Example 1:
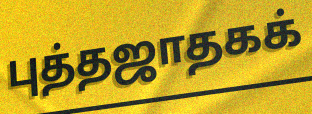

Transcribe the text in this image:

புத்தஜாதகக்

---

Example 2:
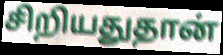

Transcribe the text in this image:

சிறியதுதான்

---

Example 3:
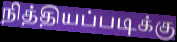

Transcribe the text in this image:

நித்தியப்படிக்கு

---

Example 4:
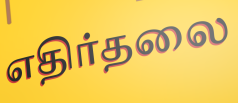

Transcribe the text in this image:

எதிர்தலை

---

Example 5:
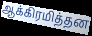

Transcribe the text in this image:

ஆக்கிரமித்தன